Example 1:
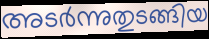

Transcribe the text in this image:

അടർന്നുതുടങ്ങിയ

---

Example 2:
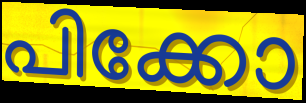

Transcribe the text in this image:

പിക്കോ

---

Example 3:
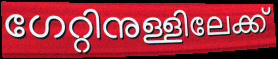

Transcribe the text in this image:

ഗേറ്റിനുള്ളിലേക്ക്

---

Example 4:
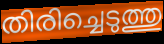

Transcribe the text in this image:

തിരിച്ചെടുത്തു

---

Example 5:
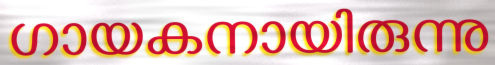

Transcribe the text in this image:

ഗായകനായിരുന്നു